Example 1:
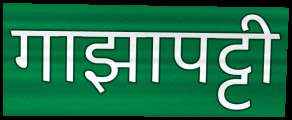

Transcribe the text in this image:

गाझापट्टी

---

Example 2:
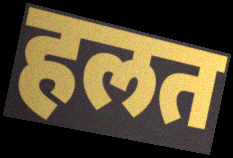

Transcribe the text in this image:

हलत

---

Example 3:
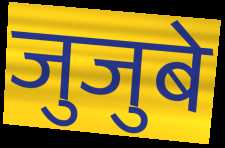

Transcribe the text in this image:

जुजुबे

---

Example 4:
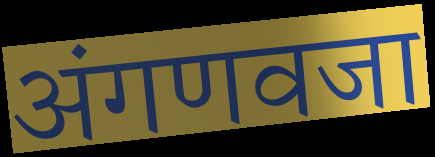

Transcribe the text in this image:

अंगणवजा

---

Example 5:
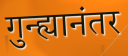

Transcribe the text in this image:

गुन्ह्यानंतर